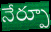
నేర్పూ